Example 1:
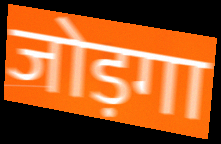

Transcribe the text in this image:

जोड़गा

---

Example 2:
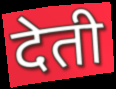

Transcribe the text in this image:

देती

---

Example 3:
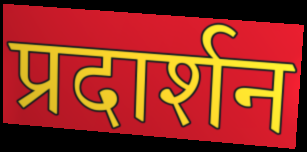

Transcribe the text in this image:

प्रदार्शन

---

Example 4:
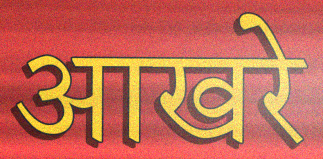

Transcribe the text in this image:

आखरे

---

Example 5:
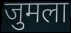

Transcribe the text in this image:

जुमला